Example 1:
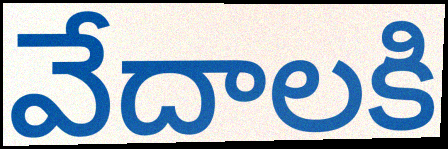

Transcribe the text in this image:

వేదాలకి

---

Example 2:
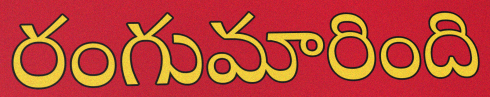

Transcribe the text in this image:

రంగుమారింది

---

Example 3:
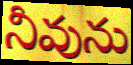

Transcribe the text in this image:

నీవును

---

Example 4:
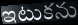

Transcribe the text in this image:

ఇటుకను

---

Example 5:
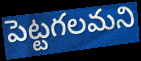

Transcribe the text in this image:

పెట్టగలమని